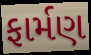
ફાર્મણ